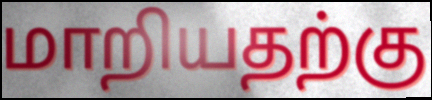
மாறியதற்கு